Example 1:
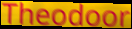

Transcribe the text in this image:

Theodoor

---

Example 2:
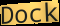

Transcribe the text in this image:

Dock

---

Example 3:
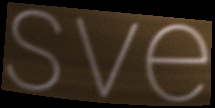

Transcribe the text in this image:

sve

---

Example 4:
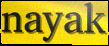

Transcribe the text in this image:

nayak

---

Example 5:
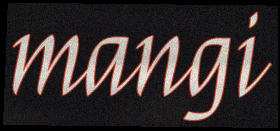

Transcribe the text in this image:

mangi